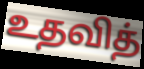
உதவித்